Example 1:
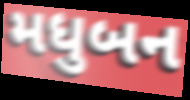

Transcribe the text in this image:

મધુબન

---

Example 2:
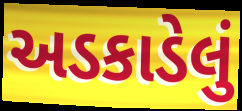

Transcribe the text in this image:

અડકાડેલું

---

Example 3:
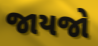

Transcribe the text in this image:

જાયજો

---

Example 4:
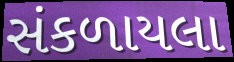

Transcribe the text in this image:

સંકળાયલા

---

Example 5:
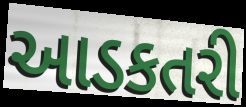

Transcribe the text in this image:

આડકતરી